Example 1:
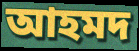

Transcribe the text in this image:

আহমদ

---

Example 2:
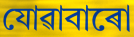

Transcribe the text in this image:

যোৱাবাৰো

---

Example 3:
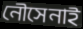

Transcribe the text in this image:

নৌসেনাই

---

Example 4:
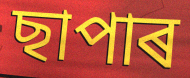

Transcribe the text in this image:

ছাপাৰ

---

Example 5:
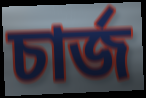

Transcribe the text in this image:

চাৰ্জ